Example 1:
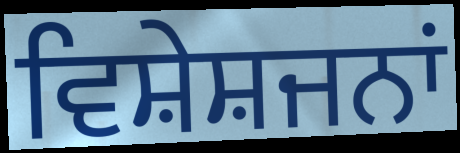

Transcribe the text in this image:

ਵਿਸ਼ੇਸ਼ਜਨਾਂ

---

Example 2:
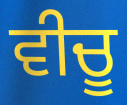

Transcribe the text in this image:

ਵੀਚੂ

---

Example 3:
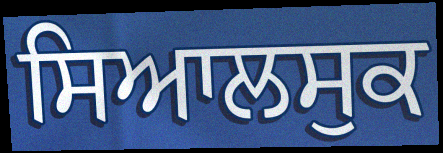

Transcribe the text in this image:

ਸਿਆਲਸੁਕ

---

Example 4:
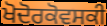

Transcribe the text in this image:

ਖੋਦੋਰਕੋਵਸਕੀ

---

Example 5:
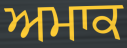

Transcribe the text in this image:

ਅਮਾਕ